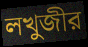
লখুজীর